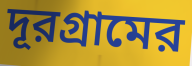
দূরগ্রামের